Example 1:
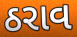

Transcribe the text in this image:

ઠરાવ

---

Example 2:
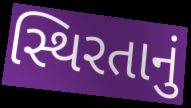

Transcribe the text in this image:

સ્થિરતાનું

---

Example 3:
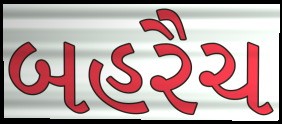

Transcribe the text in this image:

બહરૈચ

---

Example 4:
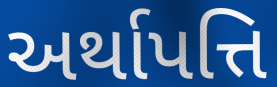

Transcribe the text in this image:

અર્થાપત્તિ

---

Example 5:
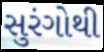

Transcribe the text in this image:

સુરંગોથી